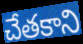
చేతకాని